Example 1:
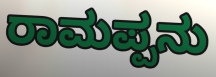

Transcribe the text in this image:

ರಾಮಪ್ಪನು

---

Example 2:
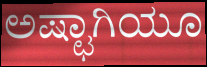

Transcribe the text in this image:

ಅಷ್ಟಾಗಿಯೂ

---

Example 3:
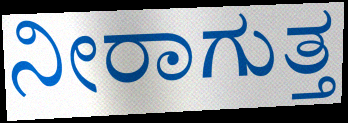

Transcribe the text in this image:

ನೀರಾಗುತ್ತ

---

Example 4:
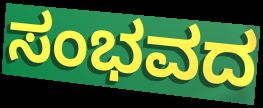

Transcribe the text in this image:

ಸಂಭವದ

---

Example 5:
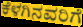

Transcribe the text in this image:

ಕೆಳಗಿನವರಿಗೆ